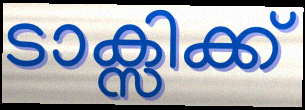
ടാക്സിക്ക്